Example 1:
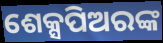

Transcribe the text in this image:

ଶେକ୍ସପିଅରଙ୍କ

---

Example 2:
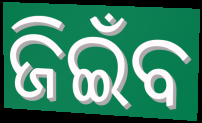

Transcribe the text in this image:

ଜିଇଁବ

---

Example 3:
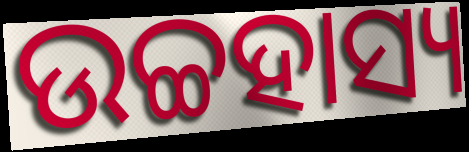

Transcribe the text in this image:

ଉଚ୍ଚହାସ୍ୟ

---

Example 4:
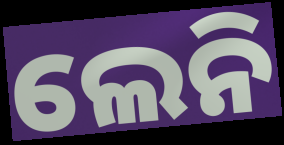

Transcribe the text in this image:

ଲେନି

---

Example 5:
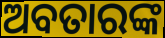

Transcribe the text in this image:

ଅବତାରଙ୍କ